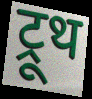
ट्रूथ